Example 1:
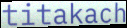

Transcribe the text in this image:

titakach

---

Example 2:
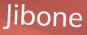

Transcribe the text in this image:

Jibone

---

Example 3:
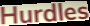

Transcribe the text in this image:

Hurdles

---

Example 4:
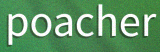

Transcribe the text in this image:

poacher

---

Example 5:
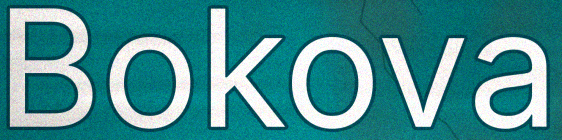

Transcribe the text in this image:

Bokova